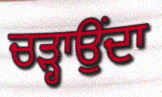
ਚੜ੍ਹਾਉਂਦਾ